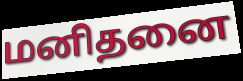
மனிதனை